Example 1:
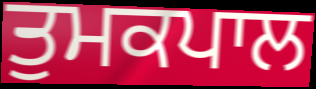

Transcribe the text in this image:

ਤੁਮਕਪਾਲ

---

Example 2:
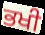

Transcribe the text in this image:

ਭਖੀ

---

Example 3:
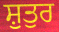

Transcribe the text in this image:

ਸ਼ੁਤੁਰ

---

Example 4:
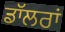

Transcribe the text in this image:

ਡਾੱਲਰਾਂ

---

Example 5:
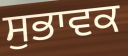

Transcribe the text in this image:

ਸੁਭਾਵਕ